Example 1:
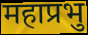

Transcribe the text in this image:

महाप्रभु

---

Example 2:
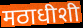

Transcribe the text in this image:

मठाधीशी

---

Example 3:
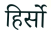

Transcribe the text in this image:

हिर्सो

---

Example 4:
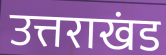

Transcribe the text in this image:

उत्तराखंड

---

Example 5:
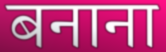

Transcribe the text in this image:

बनाना